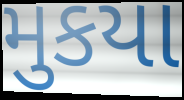
મુકયા